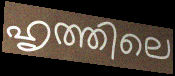
ഹൃത്തിലെ